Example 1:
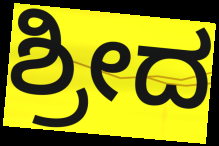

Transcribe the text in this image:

ಶ್ರೀದ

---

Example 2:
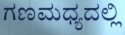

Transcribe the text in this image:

ಗಣಮಧ್ಯದಲ್ಲಿ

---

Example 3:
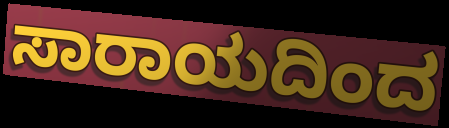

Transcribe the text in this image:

ಸಾರಾಯದಿಂದ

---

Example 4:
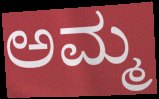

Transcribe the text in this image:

ಅಮ್ಮ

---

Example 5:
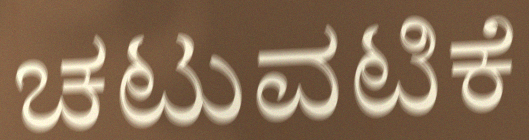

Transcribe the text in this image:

ಚಟುವಟಿಕೆ